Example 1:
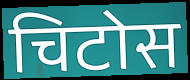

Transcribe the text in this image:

चिटोस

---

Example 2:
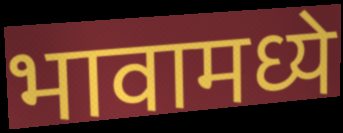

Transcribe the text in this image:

भावामध्ये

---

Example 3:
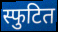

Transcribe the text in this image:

स्फुटित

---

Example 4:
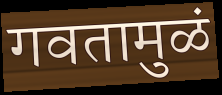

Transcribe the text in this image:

गवतामुळं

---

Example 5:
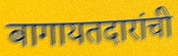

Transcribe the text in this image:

बागायतदारांची